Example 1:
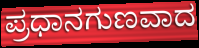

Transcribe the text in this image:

ಪ್ರಧಾನಗುಣವಾದ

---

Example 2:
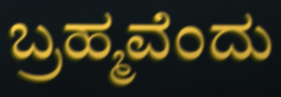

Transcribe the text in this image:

ಬ್ರಹ್ಮವೆಂದು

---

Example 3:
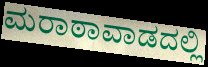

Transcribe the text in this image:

ಮರಾಠಾವಾಡದಲ್ಲಿ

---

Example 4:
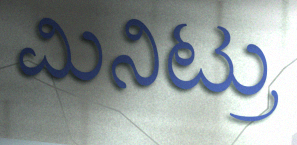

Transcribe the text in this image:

ಮಿನಿಟ್ರು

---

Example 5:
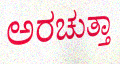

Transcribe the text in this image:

ಅರಚುತ್ತಾ